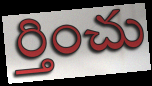
ర్తించు